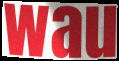
wau